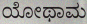
ಯೋಥಾಮ